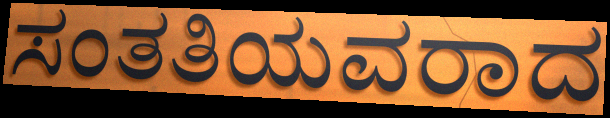
ಸಂತತಿಯವರಾದ